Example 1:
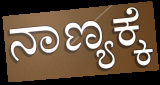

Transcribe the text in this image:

ನಾಣ್ಯಕ್ಕೆ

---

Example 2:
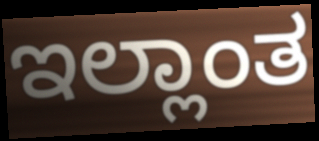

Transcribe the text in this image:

ಇಲ್ಲಾಂತ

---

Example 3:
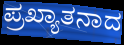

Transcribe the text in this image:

ಪ್ರಖ್ಯಾತನಾದ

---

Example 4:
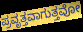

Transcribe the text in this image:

ಪ್ರವೃತ್ತವಾಗುತ್ತವೋ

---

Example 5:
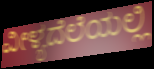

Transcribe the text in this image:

ವೀಳ್ಯದೆಲೆಯಲ್ಲಿ